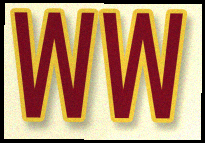
WW